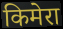
किमेरा